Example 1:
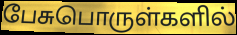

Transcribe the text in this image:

பேசுபொருள்களில்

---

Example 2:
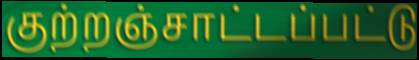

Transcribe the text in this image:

குற்றஞ்சாட்டப்பட்டு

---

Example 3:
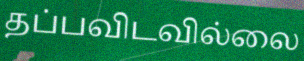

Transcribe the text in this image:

தப்பவிடவில்லை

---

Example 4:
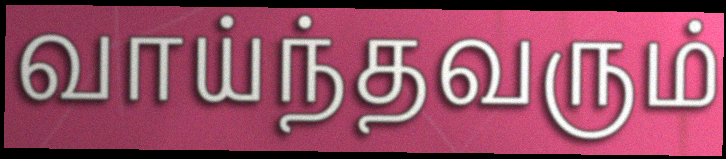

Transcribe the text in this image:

வாய்ந்தவரும்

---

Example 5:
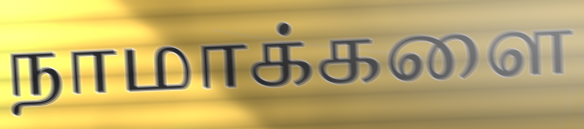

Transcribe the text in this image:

நாமாக்களை